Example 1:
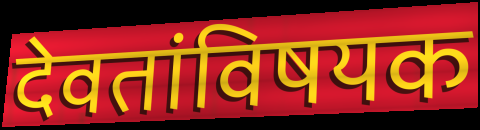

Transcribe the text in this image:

देवतांविषयक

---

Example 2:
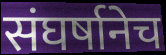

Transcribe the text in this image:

संघर्षानेच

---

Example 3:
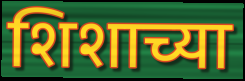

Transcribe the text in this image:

शिशाच्या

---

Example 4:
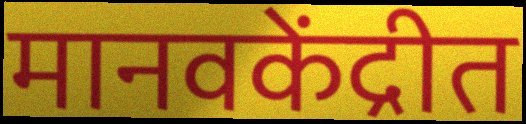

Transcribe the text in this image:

मानवकेंद्रीत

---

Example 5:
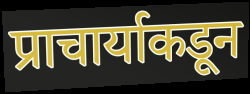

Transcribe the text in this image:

प्राचार्याकडून